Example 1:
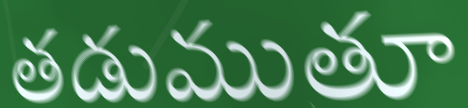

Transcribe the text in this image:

తడుముతూ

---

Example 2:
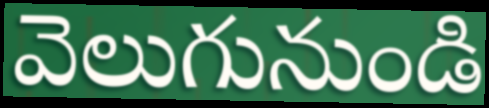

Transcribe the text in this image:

వెలుగునుండి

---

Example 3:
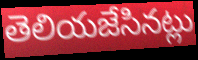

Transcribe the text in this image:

తెలియజేసినట్లు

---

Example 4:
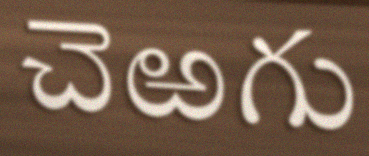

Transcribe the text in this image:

చెఱగు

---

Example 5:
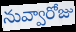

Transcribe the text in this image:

నువ్వారోజు